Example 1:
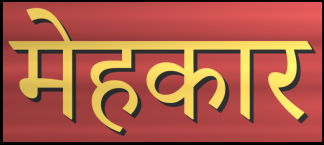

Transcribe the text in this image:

मेहकार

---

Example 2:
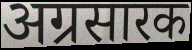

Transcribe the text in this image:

अग्रसारक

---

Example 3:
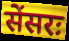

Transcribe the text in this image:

सेंसरः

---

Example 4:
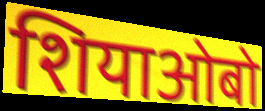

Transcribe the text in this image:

शियाओबो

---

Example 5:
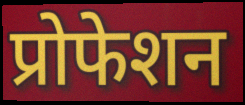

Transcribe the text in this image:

प्रोफेशन